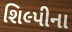
શિલ્પીના